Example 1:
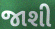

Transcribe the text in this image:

જાશી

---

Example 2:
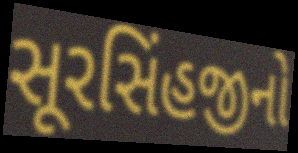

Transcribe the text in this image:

સૂરસિંહજીનો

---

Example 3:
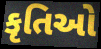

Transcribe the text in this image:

કૃતિઓ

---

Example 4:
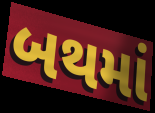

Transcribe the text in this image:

બથમાં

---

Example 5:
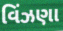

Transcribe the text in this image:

વિંઝણા